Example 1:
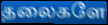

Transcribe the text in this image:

தலைகளே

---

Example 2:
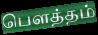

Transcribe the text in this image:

பௌத்தம்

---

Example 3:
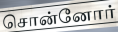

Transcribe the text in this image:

சொன்னோர்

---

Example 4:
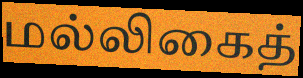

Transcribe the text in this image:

மல்லிகைத்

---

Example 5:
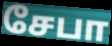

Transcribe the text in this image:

சேபா